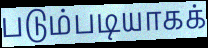
படும்படியாகக்